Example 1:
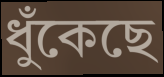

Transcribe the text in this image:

ধুঁকেছে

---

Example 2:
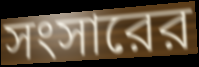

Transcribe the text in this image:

সংসারের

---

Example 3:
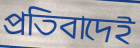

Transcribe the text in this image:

প্রতিবাদেই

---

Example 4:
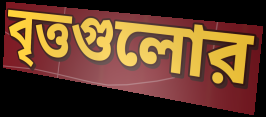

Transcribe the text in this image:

বৃত্তগুলোর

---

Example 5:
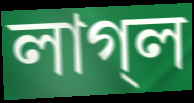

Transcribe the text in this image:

লাগ্‌ল